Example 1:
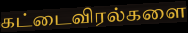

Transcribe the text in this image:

கட்டைவிரல்களை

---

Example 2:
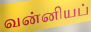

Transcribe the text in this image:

வன்னியப்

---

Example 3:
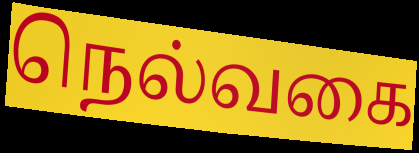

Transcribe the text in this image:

நெல்வகை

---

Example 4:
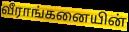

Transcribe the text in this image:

வீராங்கனையின்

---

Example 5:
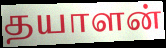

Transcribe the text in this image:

தயாளன்